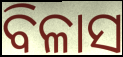
ବିଳାସ